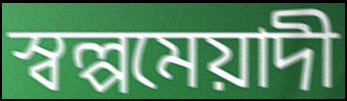
স্বল্পমেয়াদী